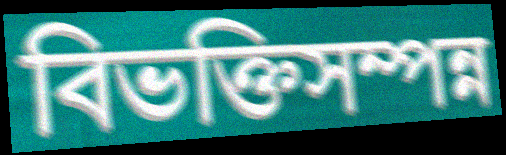
বিভক্তিসম্পন্ন